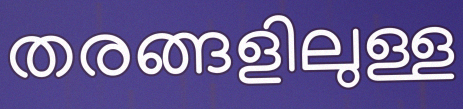
തരങ്ങളിലുള്ള